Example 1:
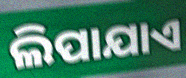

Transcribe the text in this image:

ଲିପାଯାଏ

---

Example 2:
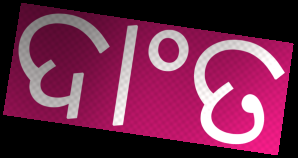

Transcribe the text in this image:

ଦାଂତ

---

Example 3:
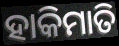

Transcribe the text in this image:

ହାକିମାତି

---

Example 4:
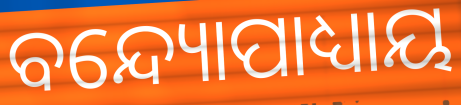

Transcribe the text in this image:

ବନ୍ଦ୍ୟୋପାଧ୍ୟାୟ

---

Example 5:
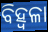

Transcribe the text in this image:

ବିହ୍ଵଳା